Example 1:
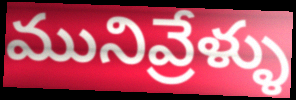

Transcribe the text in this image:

మునివ్రేళ్ళు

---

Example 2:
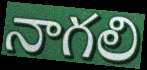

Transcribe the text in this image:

నాగలి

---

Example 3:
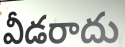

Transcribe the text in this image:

వీడరాదు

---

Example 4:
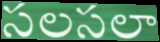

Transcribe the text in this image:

సలసలా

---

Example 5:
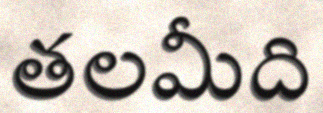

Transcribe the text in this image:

తలమీది